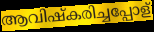
ആവിഷ്കരിച്ചപ്പോള്